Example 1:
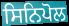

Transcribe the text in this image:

ਸਿਨਿਪੋਲ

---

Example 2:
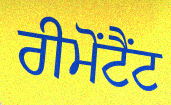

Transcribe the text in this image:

ਰੀਮੋਂਟੈਂਟ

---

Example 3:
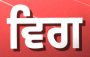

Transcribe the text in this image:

ਵਿਗ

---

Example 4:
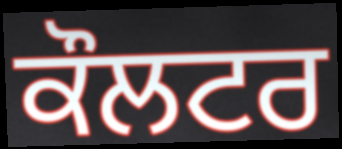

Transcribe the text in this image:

ਕੌਲਟਰ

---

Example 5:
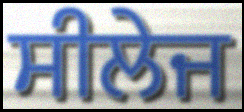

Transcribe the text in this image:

ਸੀਲੇਜ